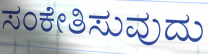
ಸಂಕೇತಿಸುವುದು